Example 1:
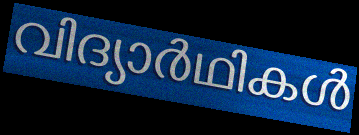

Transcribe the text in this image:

വിദ്യാർഥികൾ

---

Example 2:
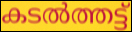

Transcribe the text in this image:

കടൽത്തട്ട്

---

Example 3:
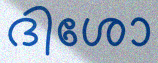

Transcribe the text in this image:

ദിശോ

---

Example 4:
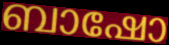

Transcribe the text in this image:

ബാഷോ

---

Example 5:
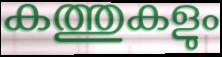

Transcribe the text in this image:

കത്തുകളും